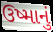
ઉષ્માનું